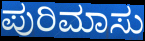
ಪುರಿಮಾಸು